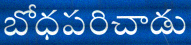
బోధపరిచాడు